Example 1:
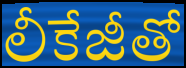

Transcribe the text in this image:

లీకేజీతో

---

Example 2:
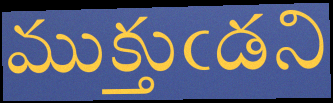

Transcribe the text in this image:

ముక్తుఁడని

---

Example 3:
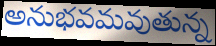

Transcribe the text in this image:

అనుభవమవుతున్న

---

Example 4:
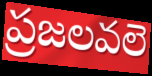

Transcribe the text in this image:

ప్రజలవలె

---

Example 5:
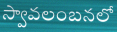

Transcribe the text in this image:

స్వావలంబనలో